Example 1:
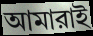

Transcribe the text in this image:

আমারাই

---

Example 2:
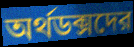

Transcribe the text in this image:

অর্থডক্সদের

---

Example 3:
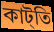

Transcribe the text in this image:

কাট্তি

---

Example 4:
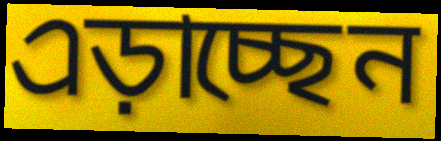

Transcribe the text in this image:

এড়াচ্ছেন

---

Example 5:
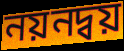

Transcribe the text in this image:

নয়নদ্বয়